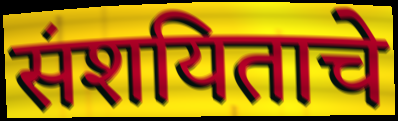
संशयिताचे